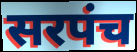
सरपंच